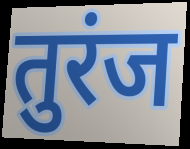
तुरंज